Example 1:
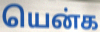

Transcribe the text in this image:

யென்க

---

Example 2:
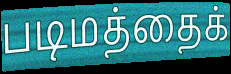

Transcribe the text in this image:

படிமத்தைக்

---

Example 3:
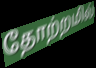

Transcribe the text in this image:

தோற்றமில்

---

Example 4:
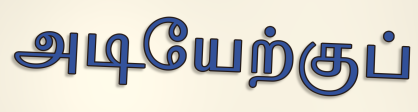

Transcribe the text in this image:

அடியேற்குப்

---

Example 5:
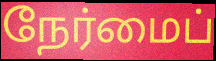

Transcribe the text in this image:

நேர்மைப்